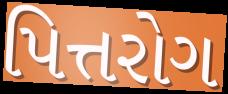
પિત્તરોગ